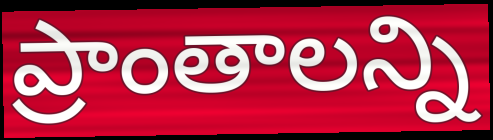
ప్రాంతాలన్ని